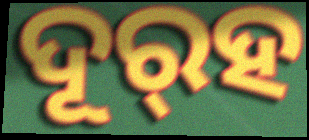
ଦୂର୍‌ହ